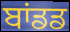
ਬਾਂਡਡ